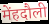
मेंहदौली